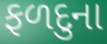
ફળદુના